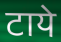
टाये